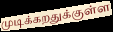
முடிக்கறதுக்குள்ள